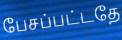
பேசப்பட்டதே